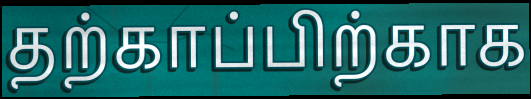
தற்காப்பிற்காக